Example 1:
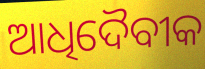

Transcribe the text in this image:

ଆଧିଦୈବୀକ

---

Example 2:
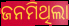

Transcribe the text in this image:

ଜନମିଥିଲା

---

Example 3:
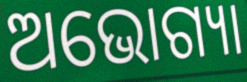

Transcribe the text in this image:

ଅଭୋଗ୍ୟା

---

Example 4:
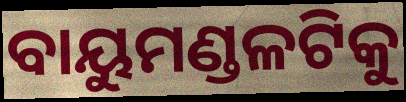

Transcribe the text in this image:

ବାୟୁମଣ୍ଡଳଟିକୁ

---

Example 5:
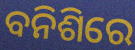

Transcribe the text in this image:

ବନିଶିରେ